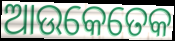
ଆଉକେତେକ